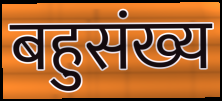
बहुसंख्य